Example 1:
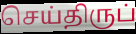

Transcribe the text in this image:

செய்திருப்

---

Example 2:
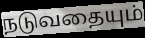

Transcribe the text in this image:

நடுவதையும்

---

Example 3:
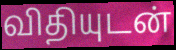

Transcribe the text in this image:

விதியுடன்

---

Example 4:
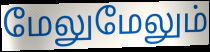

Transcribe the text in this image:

மேலுமேலும்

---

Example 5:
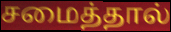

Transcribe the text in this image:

சமைத்தால்